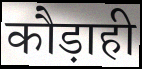
कौड़ाही